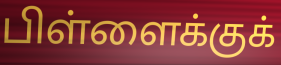
பிள்ளைக்குக்